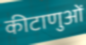
कीटाणुओं